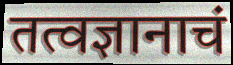
तत्वज्ञानाचं